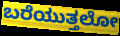
ಬರೆಯುತ್ತಲೋ